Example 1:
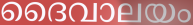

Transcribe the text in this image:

ദൈവാലയം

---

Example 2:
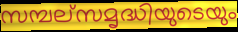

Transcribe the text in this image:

സമ്പല്സമൃദ്ധിയുടെയും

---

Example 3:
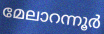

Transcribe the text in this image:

മേലാറന്നൂർ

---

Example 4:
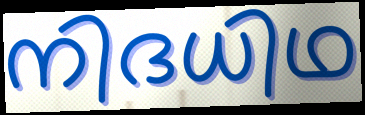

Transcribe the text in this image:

നിദധിഥ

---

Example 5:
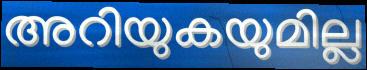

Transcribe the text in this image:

അറിയുകയുമില്ല